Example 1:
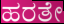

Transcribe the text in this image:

ಹರತೇ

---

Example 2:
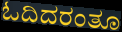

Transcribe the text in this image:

ಓದಿದರಂತೂ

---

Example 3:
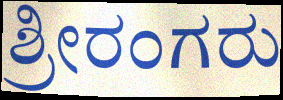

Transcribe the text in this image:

ಶ್ರೀರಂಗರು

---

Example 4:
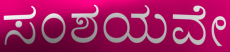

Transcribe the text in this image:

ಸಂಶಯವೇ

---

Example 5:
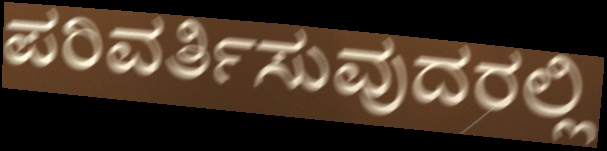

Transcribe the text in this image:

ಪರಿವರ್ತಿಸುವುದರಲ್ಲಿ